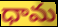
ధామ